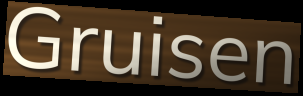
Gruisen